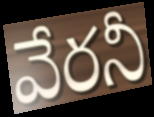
వేరనీ